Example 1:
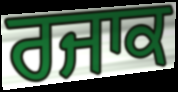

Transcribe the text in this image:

ਰਜਾਕ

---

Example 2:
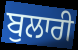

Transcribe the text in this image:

ਬੁਲਾਰੀ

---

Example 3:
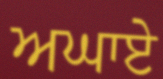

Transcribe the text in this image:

ਅਘਾਏ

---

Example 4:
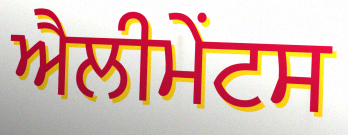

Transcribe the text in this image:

ਐਲੀਮੇੰਟਸ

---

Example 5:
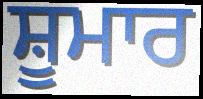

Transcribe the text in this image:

ਸ਼ੂਮਾਰ